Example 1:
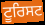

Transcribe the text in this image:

ਟੂਰਿਸਟ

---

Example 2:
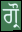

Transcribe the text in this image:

ਗ੍ਰੌ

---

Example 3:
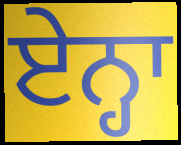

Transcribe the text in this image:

ਏਨ੍ਹ੍ਹਾ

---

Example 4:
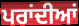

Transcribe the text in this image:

ਪਰਾਂਦੀਆਂ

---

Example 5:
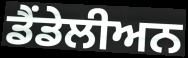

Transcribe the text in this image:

ਡੈਂਡੇਲੀਅਨ